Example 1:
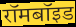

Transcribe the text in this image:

रॉमबॉइड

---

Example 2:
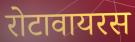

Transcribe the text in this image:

रोटावायरस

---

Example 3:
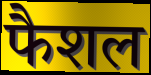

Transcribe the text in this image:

फैशल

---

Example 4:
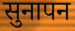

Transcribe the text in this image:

सुनापन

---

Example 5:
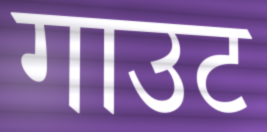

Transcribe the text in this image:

गाउट